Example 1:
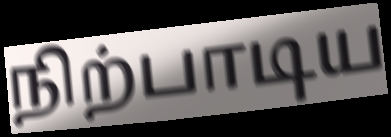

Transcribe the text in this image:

நிற்பாடிய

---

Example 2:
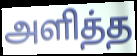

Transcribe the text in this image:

அளித்த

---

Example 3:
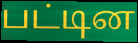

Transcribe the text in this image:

பட்டின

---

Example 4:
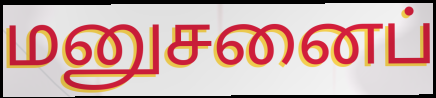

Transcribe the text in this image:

மனுசனைப்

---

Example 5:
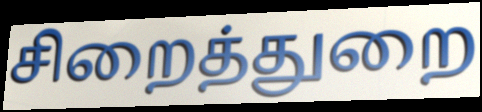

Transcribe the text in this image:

சிறைத்துறை